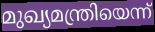
മുഖ്യമന്ത്രിയെന്ന്